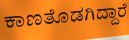
ಕಾಣತೊಡಗಿದ್ದಾರೆ